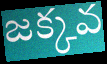
జక్కవ